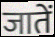
जातें